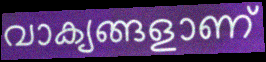
വാക്യങ്ങളാണ്